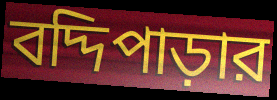
বদ্দিপাড়ার